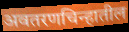
अवतरणचिन्हातील